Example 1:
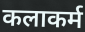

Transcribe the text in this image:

कलाकर्म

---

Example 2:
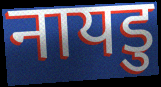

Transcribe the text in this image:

नायडु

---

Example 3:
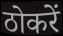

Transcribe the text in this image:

ठोकरें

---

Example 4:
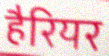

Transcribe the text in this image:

हैरियर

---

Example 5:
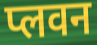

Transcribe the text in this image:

प्लवन